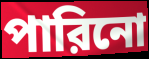
পারিনো